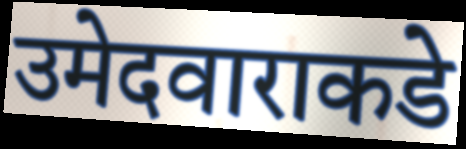
उमेदवाराकडे